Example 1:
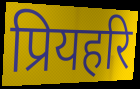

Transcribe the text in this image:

प्रियहरि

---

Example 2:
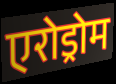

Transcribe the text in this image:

एरोड्रोम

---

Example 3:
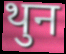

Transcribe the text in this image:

थुन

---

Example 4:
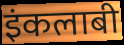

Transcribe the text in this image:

इंकलाबी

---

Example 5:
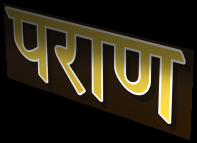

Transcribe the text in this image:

पराण